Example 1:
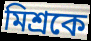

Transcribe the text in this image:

মিশ্রকে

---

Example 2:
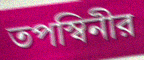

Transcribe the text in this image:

তপস্বিনীর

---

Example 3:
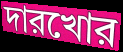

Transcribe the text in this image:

দারখোর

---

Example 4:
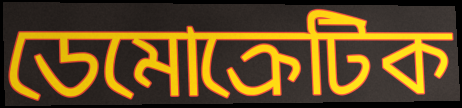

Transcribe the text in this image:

ডেমোক্রেটিক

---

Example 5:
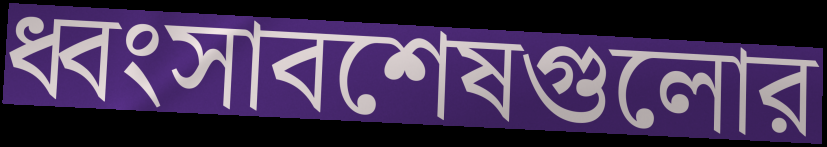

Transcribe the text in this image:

ধ্বংসাবশেষগুলোর